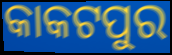
କାକଟପୁର